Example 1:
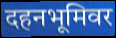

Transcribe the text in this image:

दहनभूमिवर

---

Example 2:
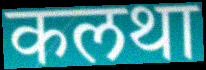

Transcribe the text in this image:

कलथा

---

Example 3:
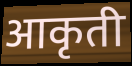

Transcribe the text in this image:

आकृती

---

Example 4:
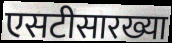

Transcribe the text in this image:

एसटीसारख्या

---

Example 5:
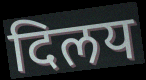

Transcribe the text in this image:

दिलय